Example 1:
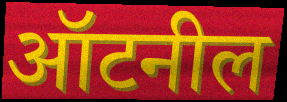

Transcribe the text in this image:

ऑटनील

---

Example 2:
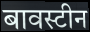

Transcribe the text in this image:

बावस्टीन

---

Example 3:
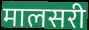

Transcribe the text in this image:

मालसरी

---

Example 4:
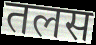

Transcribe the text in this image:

तलस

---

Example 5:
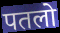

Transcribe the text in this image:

पतलो